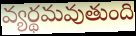
వ్యర్థమవుతుంది